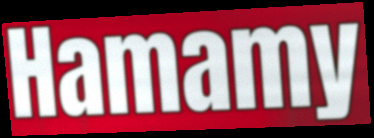
Hamamy